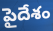
పైదేశం